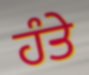
ਹੰਤੇ